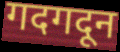
गदगदून